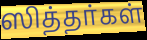
ஸித்தர்கள்